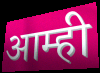
आम्ही